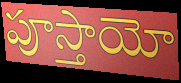
పూస్తాయో